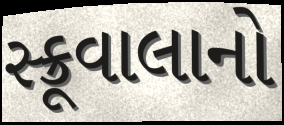
સ્ક્રૂવાલાનો